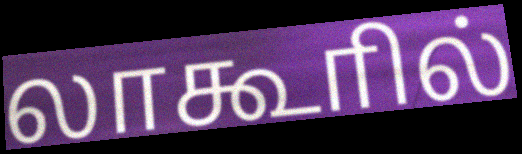
லாகூரில்